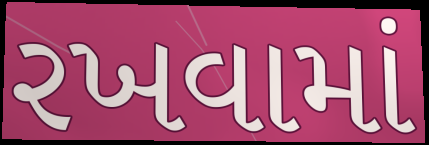
રખવામાં